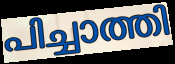
പിച്ചാത്തി